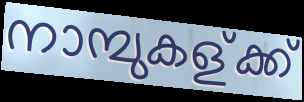
നാമ്പുകള്ക്ക്